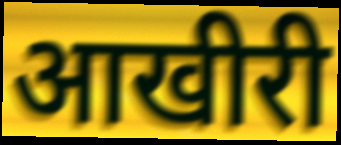
आखीरी